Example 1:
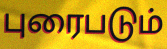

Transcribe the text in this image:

புரைபடும்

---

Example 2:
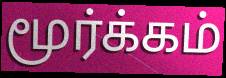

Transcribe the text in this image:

மூர்க்கம்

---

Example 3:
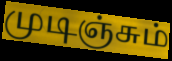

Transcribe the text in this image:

முடிஞ்சும்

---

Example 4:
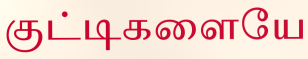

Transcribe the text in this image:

குட்டிகளையே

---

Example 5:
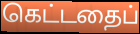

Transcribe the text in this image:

கெட்டதைப்